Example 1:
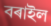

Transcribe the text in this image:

বৰাইল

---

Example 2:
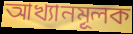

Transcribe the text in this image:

আখ্যানমূলক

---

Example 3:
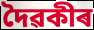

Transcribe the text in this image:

দৈৱকীৰ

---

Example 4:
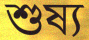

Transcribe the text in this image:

শুষ্য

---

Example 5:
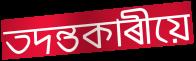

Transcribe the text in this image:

তদন্তকাৰীয়ে